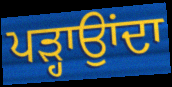
ਪੜ੍ਹਾਉਾਂਦਾ